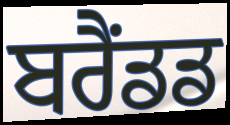
ਬਰੈਂਡਡ